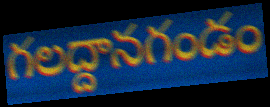
గలద్దానగండం